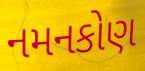
નમનકોણ